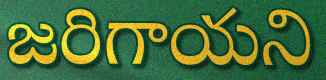
జరిగాయని